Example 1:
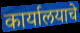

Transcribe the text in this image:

कार्यालयाचे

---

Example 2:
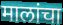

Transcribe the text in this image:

मालांचा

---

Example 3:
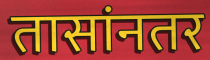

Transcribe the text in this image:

तासांनतर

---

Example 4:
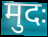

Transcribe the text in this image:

मुदः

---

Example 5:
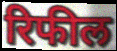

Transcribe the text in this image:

रिफील